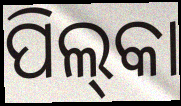
ପିଲ୍‌କା